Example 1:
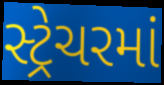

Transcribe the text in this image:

સ્ટ્રેચરમાં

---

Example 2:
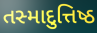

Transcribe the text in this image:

તસ્માદુત્તિષ્ઠ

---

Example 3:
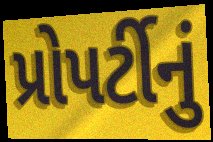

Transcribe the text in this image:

પ્રોપર્ટીનું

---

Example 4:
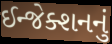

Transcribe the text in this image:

ઈન્જેક્શનનું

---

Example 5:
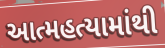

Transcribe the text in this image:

આત્મહત્યામાંથી